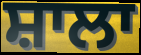
ਸ਼ਾਲਾ